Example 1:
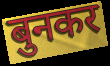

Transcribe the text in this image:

बुनकर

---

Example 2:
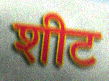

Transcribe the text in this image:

शीट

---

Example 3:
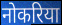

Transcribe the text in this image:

नोकरिया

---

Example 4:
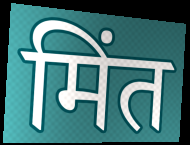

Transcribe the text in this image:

मिंत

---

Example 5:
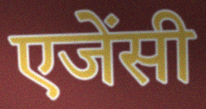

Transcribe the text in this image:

एजेंसी